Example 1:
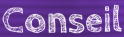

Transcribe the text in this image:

Conseil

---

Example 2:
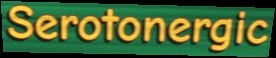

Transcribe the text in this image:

Serotonergic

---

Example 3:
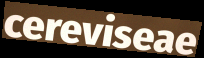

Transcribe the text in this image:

cereviseae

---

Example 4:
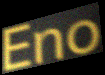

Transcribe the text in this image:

Eno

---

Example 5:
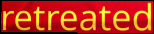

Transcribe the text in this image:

retreated